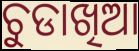
ଚୁଡାଖିଆ